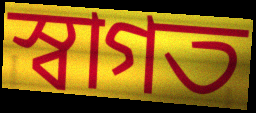
স্বাগত